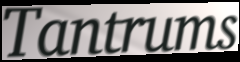
Tantrums